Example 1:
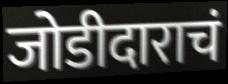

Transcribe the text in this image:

जोडीदाराचं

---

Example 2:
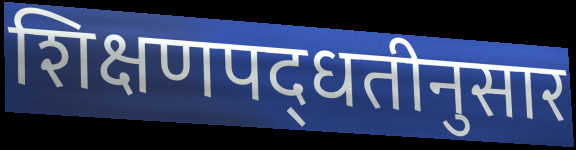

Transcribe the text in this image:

शिक्षणपद्धतीनुसार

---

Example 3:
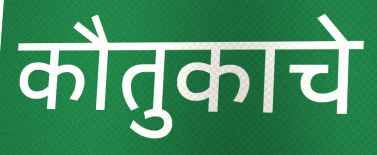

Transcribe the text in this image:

कौतुकाचे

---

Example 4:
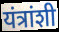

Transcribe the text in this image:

यंत्रांशी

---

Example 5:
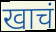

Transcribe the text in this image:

खाचं